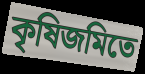
কৃষিজমিতে